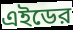
এইডের